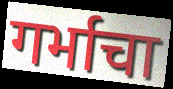
गर्भाचा